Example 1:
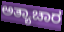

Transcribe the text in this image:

ಅತ್ಯಾಚಾರ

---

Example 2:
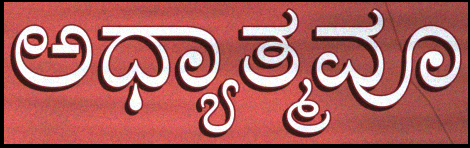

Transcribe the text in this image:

ಅಧ್ಯಾತ್ಮವೂ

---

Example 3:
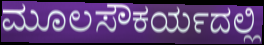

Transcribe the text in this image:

ಮೂಲಸೌಕರ್ಯದಲ್ಲಿ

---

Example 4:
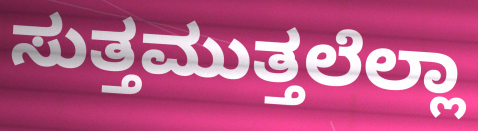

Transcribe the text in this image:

ಸುತ್ತಮುತ್ತಲೆಲ್ಲಾ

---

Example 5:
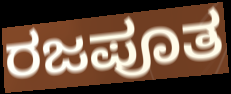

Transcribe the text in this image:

ರಜಪೂತ